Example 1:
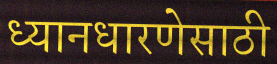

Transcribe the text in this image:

ध्यानधारणेसाठी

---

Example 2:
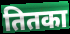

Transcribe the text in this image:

तितका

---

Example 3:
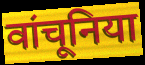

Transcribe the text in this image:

वांचूनिया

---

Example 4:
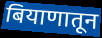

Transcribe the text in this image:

बियाणातून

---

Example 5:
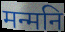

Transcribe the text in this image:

मन्मनि